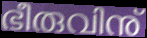
ഭീരുവിനു്